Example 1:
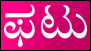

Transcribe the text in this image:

ಫಟು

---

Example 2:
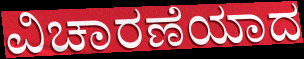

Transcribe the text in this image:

ವಿಚಾರಣೆಯಾದ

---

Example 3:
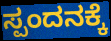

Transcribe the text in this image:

ಸ್ಪಂದನಕ್ಕೆ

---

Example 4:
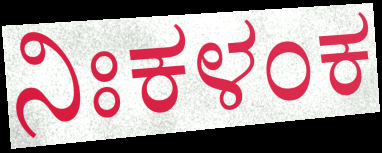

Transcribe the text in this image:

ನಿಃಕಳಂಕ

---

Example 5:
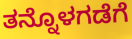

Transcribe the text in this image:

ತನ್ನೊಳಗಡೆಗೆ